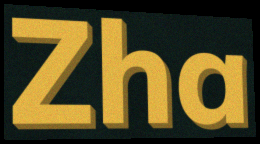
Zha